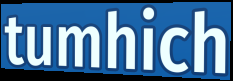
tumhich